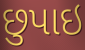
છુપાઇ